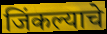
जिंकल्याचे